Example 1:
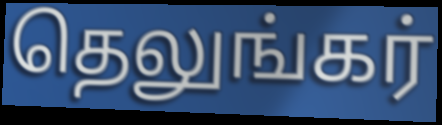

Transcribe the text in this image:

தெலுங்கர்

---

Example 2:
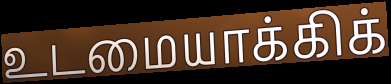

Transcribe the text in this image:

உடமையாக்கிக்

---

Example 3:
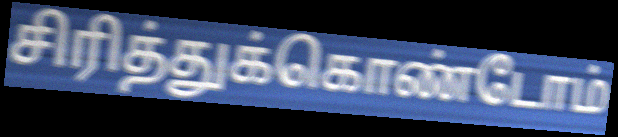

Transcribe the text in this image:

சிரித்துக்கொண்டோம்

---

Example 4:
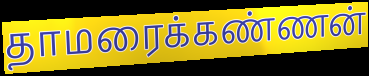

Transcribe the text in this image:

தாமரைக்கண்ணன்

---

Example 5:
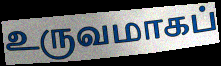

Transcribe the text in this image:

உருவமாகப்